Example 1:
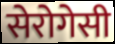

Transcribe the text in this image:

सेरोगेसी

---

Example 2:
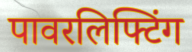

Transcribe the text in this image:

पावरलिफ्टिंग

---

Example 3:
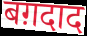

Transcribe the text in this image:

बग़दाद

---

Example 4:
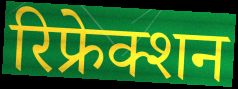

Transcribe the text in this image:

रिफ्रेक्शन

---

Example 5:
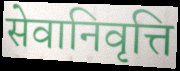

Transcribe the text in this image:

सेवानिवृत्ति